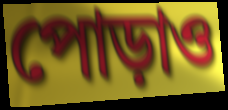
পোড়াও